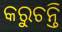
କରୁଚନ୍ତି